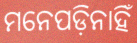
ମନେପଡ଼ିନାହିଁ